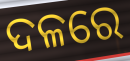
ଦଳରେ